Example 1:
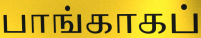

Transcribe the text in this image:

பாங்காகப்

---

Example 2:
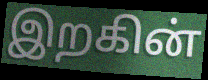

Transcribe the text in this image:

இறகின்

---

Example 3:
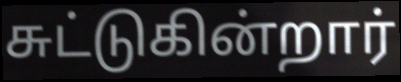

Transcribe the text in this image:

சுட்டுகின்றார்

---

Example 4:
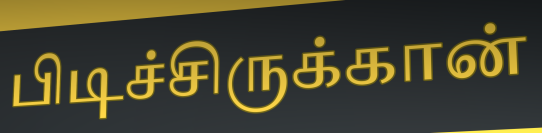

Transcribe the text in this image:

பிடிச்சிருக்கான்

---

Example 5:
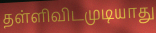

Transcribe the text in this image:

தள்ளிவிடமுடியாது